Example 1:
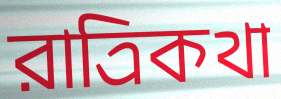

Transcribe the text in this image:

রাত্রিকথা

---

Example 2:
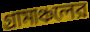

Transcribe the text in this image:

গ্রামাঞ্চলের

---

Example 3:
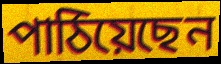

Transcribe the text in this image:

পাঠিয়েছেন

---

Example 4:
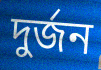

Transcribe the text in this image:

দুর্জন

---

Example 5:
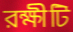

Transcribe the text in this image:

রক্ষীটি